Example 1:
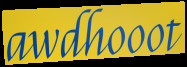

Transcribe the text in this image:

awdhooot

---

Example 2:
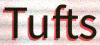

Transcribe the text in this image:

Tufts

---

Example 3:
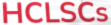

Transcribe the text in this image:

HCLSCs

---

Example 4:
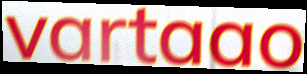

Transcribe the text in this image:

vartaao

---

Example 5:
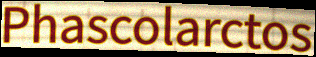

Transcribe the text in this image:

Phascolarctos